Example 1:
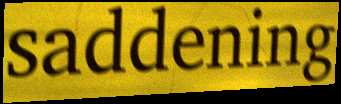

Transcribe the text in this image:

saddening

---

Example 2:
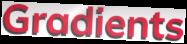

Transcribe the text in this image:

Gradients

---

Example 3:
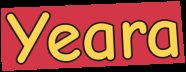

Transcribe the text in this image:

Yeara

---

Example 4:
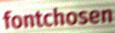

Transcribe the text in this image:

fontchosen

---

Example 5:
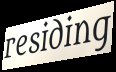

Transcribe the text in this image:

residing